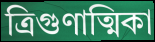
ত্রিগুণাত্মিকা